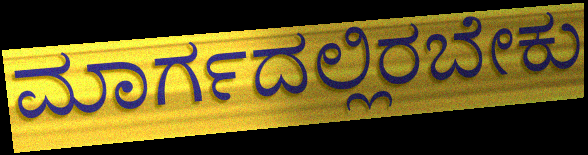
ಮಾರ್ಗದಲ್ಲಿರಬೇಕು